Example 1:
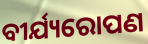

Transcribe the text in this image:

ବୀର୍ଯ୍ୟରୋପଣ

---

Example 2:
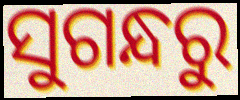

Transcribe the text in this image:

ସୁଗନ୍ଧରୁ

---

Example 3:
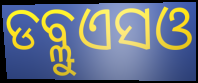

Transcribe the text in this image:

ଡବ୍ଲୁଏସଓ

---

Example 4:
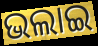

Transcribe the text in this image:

ଭଲାଇ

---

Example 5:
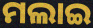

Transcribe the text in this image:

ମଲାଇ